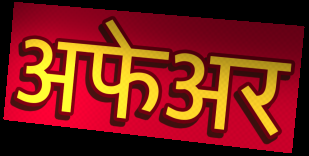
अफेअर